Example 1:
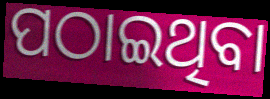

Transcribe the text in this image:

ପଠାଇଥିବା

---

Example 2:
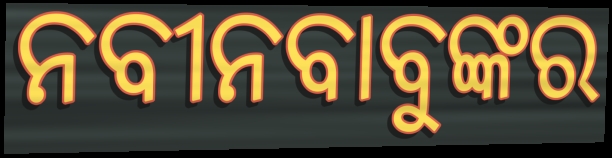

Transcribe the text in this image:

ନବୀନବାବୁଙ୍କର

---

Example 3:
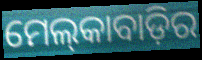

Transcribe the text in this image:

ମେଲ୍‌କାବାଡ଼ିର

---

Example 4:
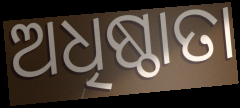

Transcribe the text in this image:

ଅଧିଷ୍ଠାତା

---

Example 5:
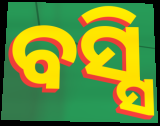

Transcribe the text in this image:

ବସ୍ସି